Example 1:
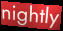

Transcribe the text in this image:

nightly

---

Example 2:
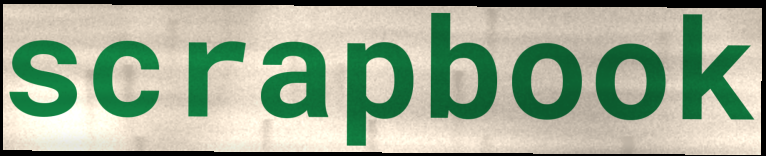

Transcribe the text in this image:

scrapbook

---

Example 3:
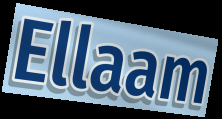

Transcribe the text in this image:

Ellaam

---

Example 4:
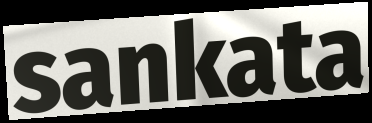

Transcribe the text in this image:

sankata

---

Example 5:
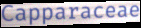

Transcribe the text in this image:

Capparaceae